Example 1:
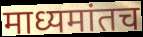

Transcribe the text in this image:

माध्यमांतच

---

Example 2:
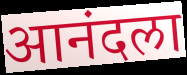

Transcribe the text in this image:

आनंदला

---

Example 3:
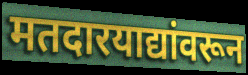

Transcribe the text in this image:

मतदारयाद्यांवरून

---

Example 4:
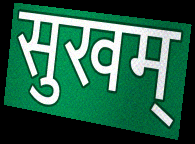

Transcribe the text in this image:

सुखम्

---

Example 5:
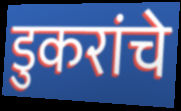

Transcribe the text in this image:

डुकरांचे